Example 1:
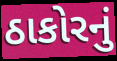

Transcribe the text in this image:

ઠાકોરનું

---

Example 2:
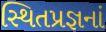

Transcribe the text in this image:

સ્થિતપ્રજ્ઞનાં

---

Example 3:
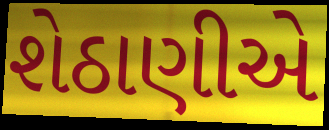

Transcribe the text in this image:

શેઠાણીએ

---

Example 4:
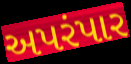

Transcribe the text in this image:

અપરંપાર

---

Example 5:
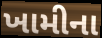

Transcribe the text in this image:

ખામીના